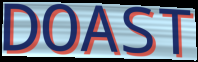
DOAST